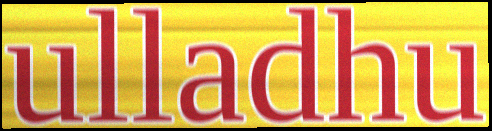
ulladhu